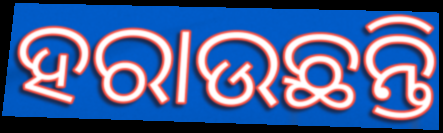
ହରାଉଛନ୍ତି